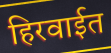
हिरवाईत